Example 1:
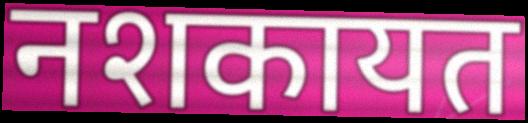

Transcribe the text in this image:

नशकायत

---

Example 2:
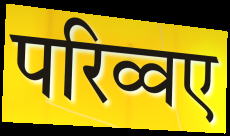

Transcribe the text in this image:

परिव्वए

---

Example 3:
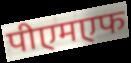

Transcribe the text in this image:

पीएमएफ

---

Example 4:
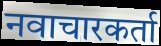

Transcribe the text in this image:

नवाचारकर्ता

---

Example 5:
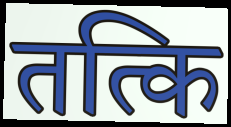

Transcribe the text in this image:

तत्कि